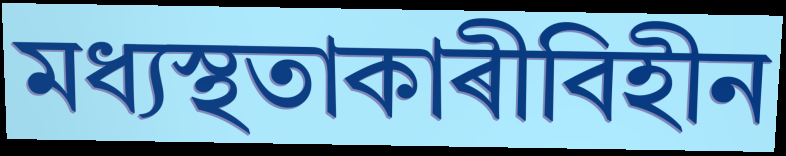
মধ্যস্থতাকাৰীবিহীন